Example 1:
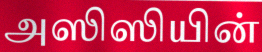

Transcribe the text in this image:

அஸிஸியின்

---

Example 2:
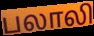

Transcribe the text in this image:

பலாலி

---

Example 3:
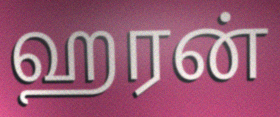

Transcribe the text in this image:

ஹரன்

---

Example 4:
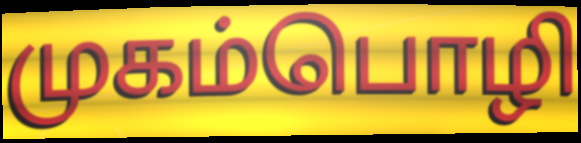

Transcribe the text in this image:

முகம்பொழி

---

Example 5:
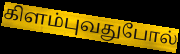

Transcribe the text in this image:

கிளம்புவதுபோல்